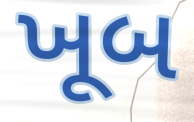
ખૂબ